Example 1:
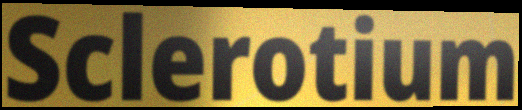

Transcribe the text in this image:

Sclerotium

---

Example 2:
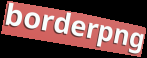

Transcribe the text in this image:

borderpng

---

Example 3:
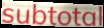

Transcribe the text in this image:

subtotal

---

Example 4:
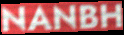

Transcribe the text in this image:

NANBH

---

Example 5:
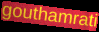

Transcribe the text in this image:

gouthamrati